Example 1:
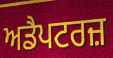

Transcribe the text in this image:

ਅਡੈਪਟਰਜ਼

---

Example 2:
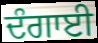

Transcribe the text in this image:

ਦੰਗਾਈ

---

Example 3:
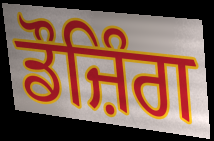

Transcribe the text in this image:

ਡੌਜ਼ਿੰਗ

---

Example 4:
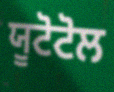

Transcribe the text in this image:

ਯੂਟੋਟੋਲ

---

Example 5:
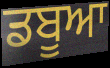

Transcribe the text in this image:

ਡਬੂਆ